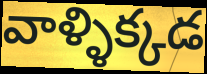
వాళ్ళిక్కడ